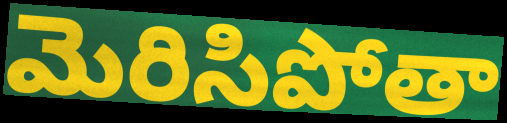
మెరిసిపోతా